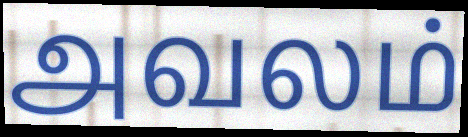
அவலம்